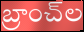
బ్రాంచ్‌ల